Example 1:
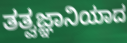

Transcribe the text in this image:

ತತ್ವಜ್ಞಾನಿಯಾದ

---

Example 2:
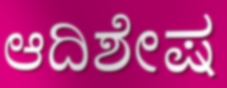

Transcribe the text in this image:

ಆದಿಶೇಷ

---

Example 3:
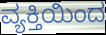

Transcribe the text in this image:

ವ್ಯಕ್ತಿಯಿಂದ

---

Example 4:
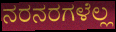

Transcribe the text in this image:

ನರನರಗಳೆಲ್ಲ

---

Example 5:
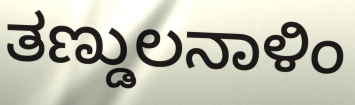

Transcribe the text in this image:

ತಣ್ಡುಲನಾಳಿಂ